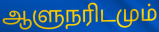
ஆளுநரிடமும்